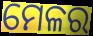
ମେଳର